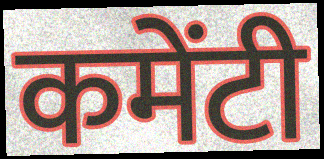
कमेंटी